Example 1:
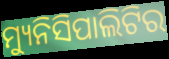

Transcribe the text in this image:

ମ୍ୟୁନିସିପାଲିଟିର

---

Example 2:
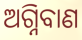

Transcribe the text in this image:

ଅଗ୍ନିବାଣ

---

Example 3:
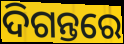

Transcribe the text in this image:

ଦିଗନ୍ତରେ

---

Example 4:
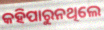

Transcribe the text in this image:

କହିପାରୁନଥିଲେ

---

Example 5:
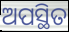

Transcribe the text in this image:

ଅପସ୍ଥିତ